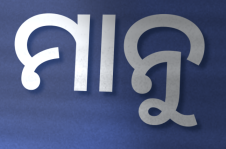
ମାନୁ